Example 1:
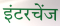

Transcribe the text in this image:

इंटरचेंज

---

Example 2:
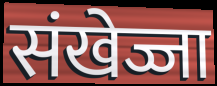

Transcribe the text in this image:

संखेज्जा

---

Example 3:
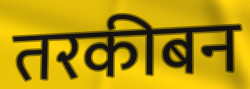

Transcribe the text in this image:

तरकीबन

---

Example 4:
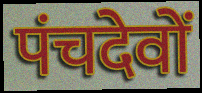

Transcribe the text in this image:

पंचदेवों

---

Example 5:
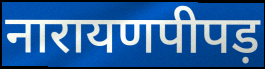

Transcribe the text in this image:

नारायणपीपड़